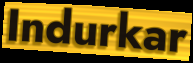
Indurkar